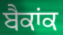
ਬੈਕਾਂਕ